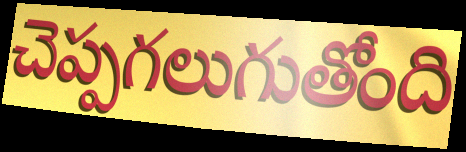
చెప్పగలుగుతోంది